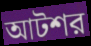
আটশর